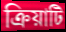
ক্রিয়াটি